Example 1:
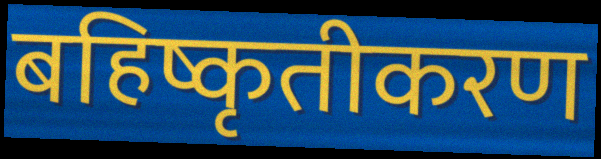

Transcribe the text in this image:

बहिष्कृतीकरण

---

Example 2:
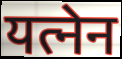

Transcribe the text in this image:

यत्‍नेन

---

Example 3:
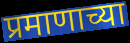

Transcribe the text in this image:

प्रमाणाच्या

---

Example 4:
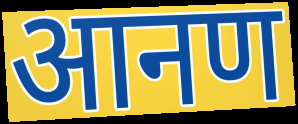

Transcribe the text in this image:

आनण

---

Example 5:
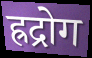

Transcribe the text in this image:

ह्रद्रोग